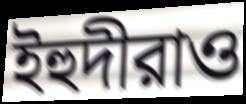
ইহুদীরাও